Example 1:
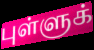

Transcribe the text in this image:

புள்ளுக்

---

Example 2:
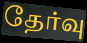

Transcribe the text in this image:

தேர்வு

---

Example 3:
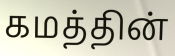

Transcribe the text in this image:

கமத்தின்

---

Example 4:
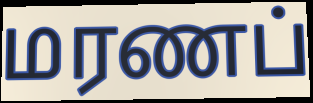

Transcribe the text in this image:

மரணப்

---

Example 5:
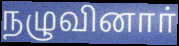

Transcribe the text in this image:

நழுவினார்